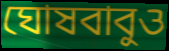
ঘোষবাবুও